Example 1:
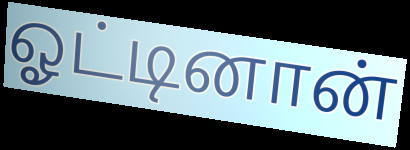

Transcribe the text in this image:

ஓட்டினான்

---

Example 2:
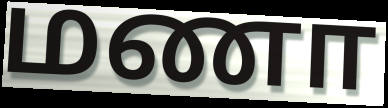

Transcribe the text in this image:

மணா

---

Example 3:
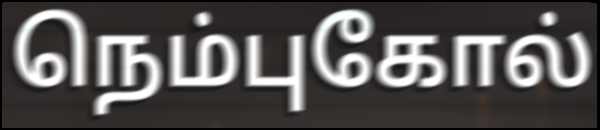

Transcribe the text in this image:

நெம்புகோல்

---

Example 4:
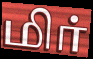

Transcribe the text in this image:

மிர்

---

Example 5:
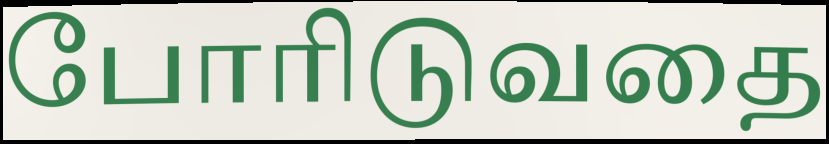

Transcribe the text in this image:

போரிடுவதை